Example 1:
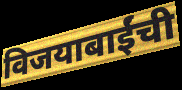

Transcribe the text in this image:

विजयाबाईंची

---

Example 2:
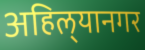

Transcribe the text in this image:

अहिल्यानगर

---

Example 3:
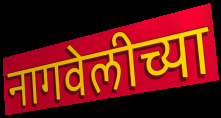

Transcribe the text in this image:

नागवेलीच्या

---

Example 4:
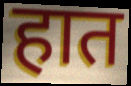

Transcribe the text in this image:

हात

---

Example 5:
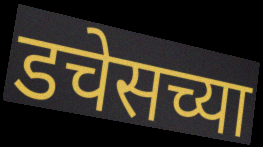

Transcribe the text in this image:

डचेसच्या